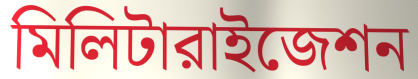
মিলিটারাইজেশন